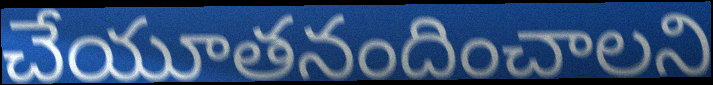
చేయూతనందించాలని